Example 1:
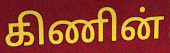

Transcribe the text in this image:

கிணின்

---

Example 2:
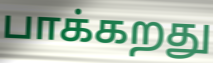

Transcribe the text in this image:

பாக்கறது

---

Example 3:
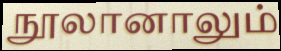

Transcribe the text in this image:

நூலானாலும்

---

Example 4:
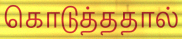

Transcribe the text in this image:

கொடுத்ததால்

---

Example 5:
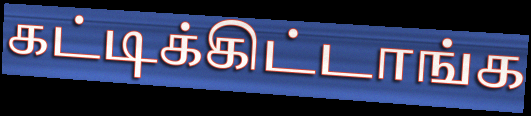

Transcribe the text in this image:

கட்டிக்கிட்டாங்க